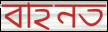
বাহনত